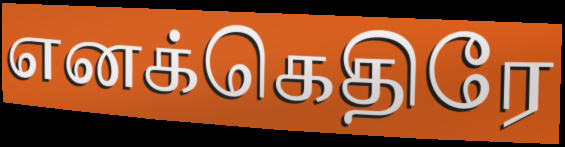
எனக்கெதிரே